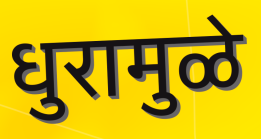
धुरामुळे